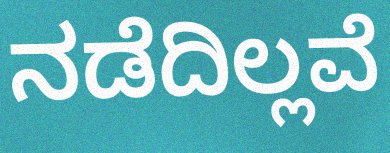
ನಡೆದಿಲ್ಲವೆ